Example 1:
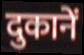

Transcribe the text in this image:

दुकानें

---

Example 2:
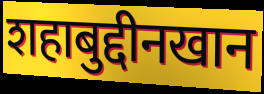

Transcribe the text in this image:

शहाबुद्दीनखान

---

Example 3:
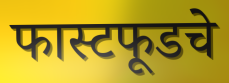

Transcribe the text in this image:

फास्टफूडचे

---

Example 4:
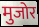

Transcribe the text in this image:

मुजोर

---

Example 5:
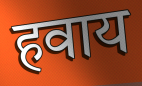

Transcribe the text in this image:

हवाय